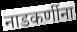
नाडकर्णीना